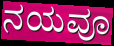
ನಯವೂ